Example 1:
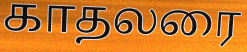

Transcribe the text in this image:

காதலரை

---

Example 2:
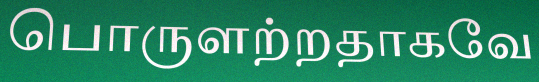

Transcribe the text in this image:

பொருளற்றதாகவே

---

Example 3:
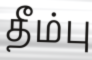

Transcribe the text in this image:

தீம்பு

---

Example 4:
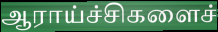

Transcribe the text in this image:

ஆராய்ச்சிகளைச்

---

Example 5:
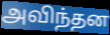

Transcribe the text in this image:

அவிந்தன